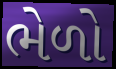
ભેળો